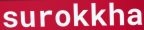
surokkha